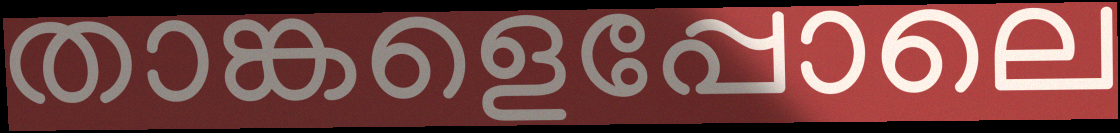
താങ്കളെപ്പോലെ